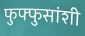
फुफ्फुसांशी